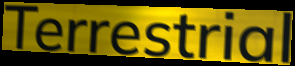
Terrestrial